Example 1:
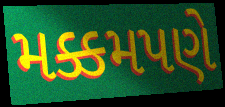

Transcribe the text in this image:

મક્કમપણે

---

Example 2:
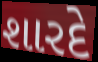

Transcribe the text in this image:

શારદે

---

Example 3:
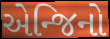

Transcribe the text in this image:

એન્જિનો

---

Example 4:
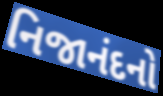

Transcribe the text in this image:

નિજાનંદનો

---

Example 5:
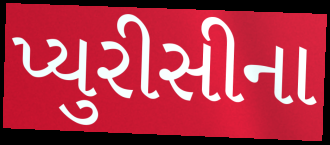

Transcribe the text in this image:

પ્યુરીસીના